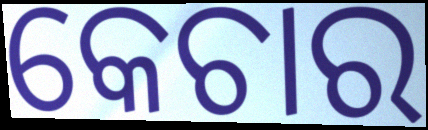
କେଚାର